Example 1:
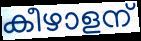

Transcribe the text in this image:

കീഴാളന്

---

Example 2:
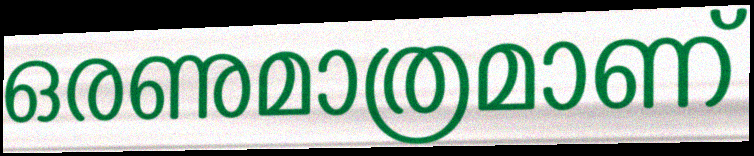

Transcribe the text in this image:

ഒരണുമാത്രമാണ്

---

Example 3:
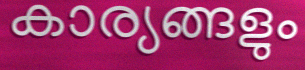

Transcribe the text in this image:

കാര്യങ്ങളും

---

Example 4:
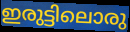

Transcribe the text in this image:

ഇരുട്ടിലൊരു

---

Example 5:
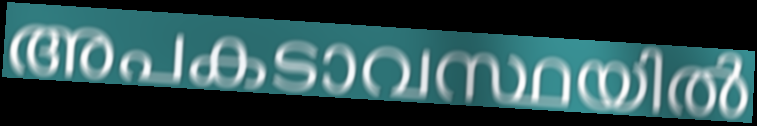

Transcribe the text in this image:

അപകടാവസ്ഥയിൽ